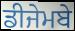
ਡੀਜੇਮਬੇ